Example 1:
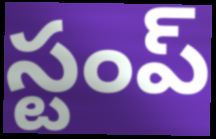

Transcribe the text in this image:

స్టంప్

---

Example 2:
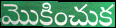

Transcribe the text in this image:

మొకించుక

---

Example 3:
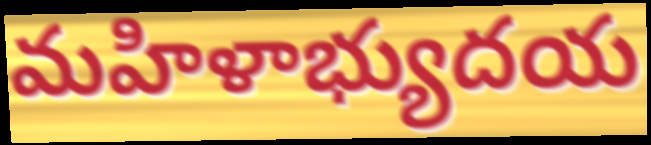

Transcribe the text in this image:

మహిళాభ్యుదయ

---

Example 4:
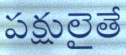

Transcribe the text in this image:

పక్షులైతే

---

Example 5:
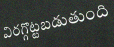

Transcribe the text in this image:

విరగ్గొట్టబడుతుంది